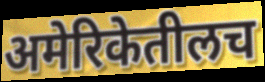
अमेरिकेतीलच